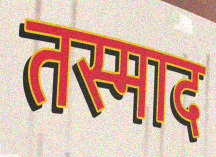
तस्माद